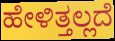
ಹೇಳಿತ್ತಲ್ಲದೆ